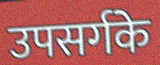
उपसर्गके